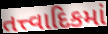
તત્ત્વાદિકમાં